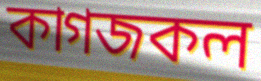
কাগজকল